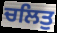
ਚਲਿਤੁ